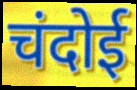
चंदोई